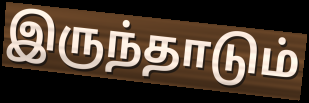
இருந்தாடும்